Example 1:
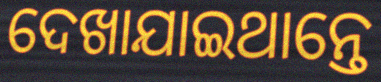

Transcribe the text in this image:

ଦେଖାଯାଇଥାନ୍ତେ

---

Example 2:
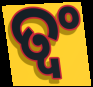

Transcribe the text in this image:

ତ୍ୱଂ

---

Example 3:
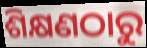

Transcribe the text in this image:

ଶିକ୍ଷଣଠାରୁ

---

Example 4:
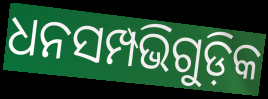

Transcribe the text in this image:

ଧନସମ୍ପଭିଗୁଡ଼ିକ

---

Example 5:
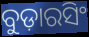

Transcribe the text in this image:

ବୁଡ଼ାରସିଂ